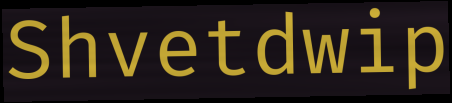
Shvetdwip